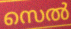
സെൽ